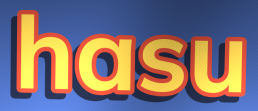
hasu